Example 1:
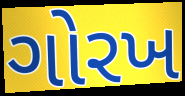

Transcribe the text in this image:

ગોરખ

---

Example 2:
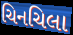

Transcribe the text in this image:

ચિનચિલા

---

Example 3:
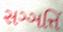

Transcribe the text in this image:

સઞ્ઞત્તિં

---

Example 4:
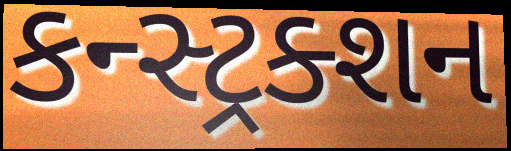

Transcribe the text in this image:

કન્સ્ટ્રક્શન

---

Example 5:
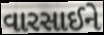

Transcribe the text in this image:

વારસાઈને